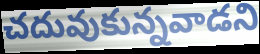
చదువుకున్నవాడని